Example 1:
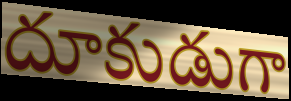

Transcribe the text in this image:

దూకుడుగా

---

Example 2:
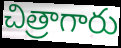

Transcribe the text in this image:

చిత్రాగారు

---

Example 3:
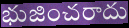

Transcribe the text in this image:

భుజించరాదు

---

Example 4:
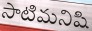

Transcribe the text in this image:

సాటిమనిషి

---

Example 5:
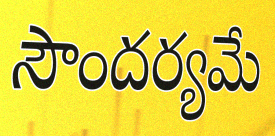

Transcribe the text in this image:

సౌందర్యమే